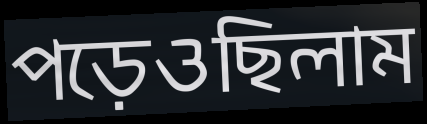
পড়েওছিলাম